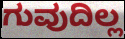
ಗುವುದಿಲ್ಲ